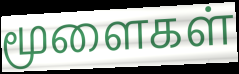
மூளைகள்